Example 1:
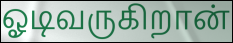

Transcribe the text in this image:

ஓடிவருகிறான்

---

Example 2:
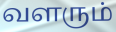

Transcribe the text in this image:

வளரும்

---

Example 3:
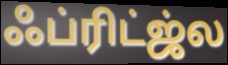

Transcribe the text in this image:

ஃப்ரிட்ஜ்ல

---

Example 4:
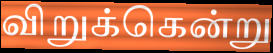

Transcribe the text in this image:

விறுக்கென்று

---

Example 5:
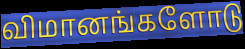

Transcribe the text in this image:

விமானங்களோடு